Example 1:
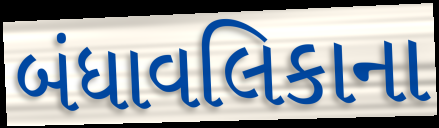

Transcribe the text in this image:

બંધાવલિકાના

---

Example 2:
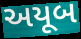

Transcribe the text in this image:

અયૂબ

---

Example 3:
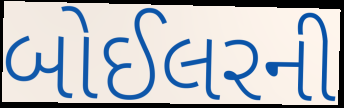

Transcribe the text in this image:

બોઈલરની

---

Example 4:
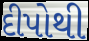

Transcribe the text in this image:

દીપોથી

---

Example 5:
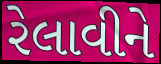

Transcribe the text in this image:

રેલાવીને